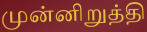
முன்னிறுத்தி